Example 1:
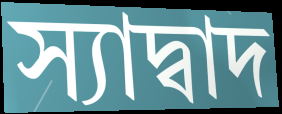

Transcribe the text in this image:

স্যাদ্বাদ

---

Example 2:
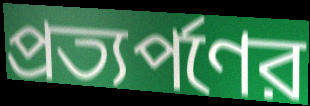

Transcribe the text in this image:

প্রত্যর্পণের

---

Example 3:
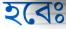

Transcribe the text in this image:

হবেঃ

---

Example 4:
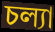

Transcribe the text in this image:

চল্যা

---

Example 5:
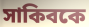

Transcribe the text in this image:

সাকিবকে